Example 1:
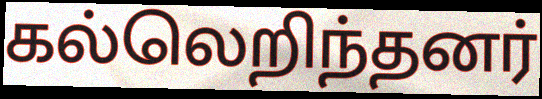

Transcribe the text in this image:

கல்லெறிந்தனர்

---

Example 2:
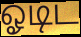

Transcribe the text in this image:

ஓடிட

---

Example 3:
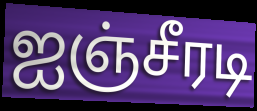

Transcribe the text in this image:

ஐஞ்சீரடி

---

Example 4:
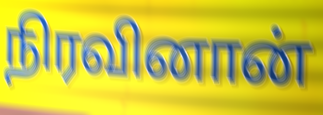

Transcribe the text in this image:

நிரவினான்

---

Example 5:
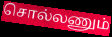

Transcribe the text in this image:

சொல்லணும்